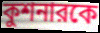
কুশনারকে